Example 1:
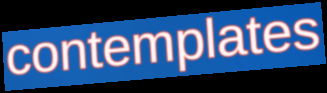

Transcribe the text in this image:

contemplates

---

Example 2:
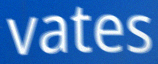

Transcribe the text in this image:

vates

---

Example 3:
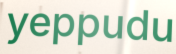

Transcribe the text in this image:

yeppudu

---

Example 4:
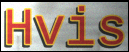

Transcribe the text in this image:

Hvis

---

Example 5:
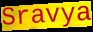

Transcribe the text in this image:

Sravya